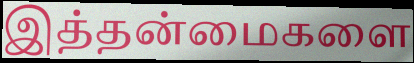
இத்தன்மைகளை